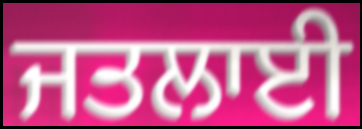
ਜਤਲਾਈ